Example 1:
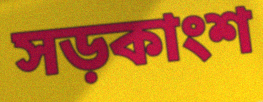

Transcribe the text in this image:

সড়কাংশ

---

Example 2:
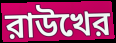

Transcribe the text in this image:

রাউখের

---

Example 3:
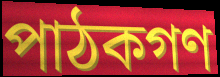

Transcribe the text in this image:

পাঠকগণ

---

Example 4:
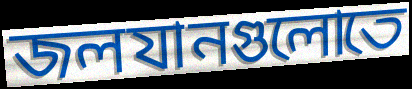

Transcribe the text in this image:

জলযানগুলোতে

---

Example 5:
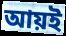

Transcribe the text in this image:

আয়ই